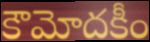
కౌమోదకీం